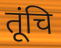
तूंचि